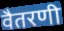
वैतरणी